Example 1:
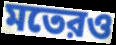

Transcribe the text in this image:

মতেরও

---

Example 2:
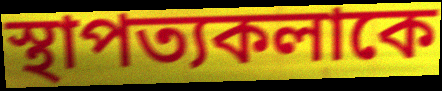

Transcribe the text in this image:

স্থাপত্যকলাকে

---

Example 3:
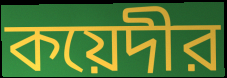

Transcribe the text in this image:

কয়েদীর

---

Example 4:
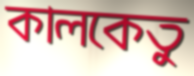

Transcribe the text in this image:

কালকেতু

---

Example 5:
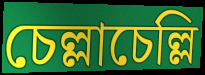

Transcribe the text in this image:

চেল্লাচেল্লি